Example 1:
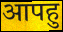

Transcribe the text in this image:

आपहु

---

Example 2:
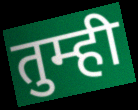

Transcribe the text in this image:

तुम्ही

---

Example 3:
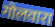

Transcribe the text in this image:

गोलवारा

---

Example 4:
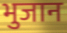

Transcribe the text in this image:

भुजान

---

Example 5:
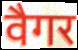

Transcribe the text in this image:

वैगर